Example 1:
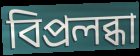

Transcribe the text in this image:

বিপ্রলব্ধা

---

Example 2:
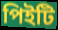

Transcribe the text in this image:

পিইটি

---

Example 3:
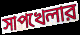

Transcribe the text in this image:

সাপখেলার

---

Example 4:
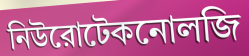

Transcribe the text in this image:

নিউরোটেকনোলজি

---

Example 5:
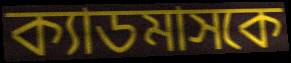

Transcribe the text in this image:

ক্যাডমাসকে